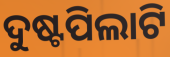
ଦୁଷ୍ଟପିଲାଟି